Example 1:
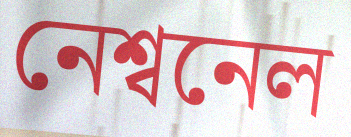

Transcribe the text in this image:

নেশ্বনেল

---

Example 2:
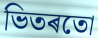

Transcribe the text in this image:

ভিতৰতো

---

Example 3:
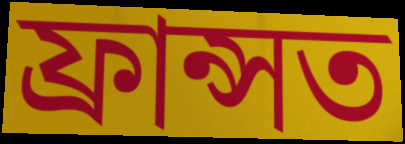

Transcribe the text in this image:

ফ্ৰান্সত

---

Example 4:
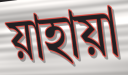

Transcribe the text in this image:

য়াহায়া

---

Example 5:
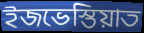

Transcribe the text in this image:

ইজভেস্তিয়াত